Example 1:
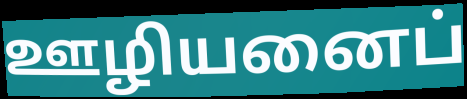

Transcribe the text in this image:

ஊழியனைப்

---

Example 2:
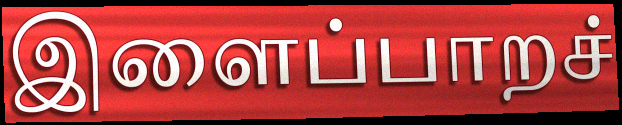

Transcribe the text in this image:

இளைப்பாறச்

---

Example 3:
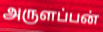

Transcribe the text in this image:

அருளப்பன்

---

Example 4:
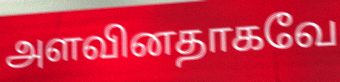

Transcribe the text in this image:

அளவினதாகவே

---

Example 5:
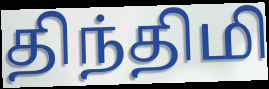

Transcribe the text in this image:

திந்திமி